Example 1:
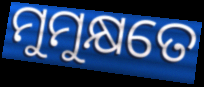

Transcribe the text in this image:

ମୁମୁକ୍ଷତେ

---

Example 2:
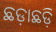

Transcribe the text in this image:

ଛଡ଼ାଛଡ଼ି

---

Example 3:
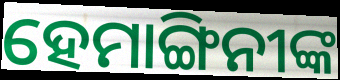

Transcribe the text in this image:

ହେମାଙ୍ଗିନୀଙ୍କ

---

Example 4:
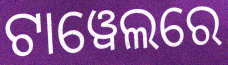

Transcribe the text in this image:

ଟାୱେଲରେ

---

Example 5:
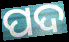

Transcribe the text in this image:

ପଦ